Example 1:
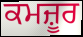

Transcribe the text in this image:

ਕਮਜ਼ੂਰ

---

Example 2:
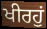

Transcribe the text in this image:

ਖੀਰਹੁਂ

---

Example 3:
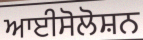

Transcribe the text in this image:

ਆਈਸੋਲੋਸ਼ਨ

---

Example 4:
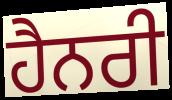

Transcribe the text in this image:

ਹੈਨਰੀ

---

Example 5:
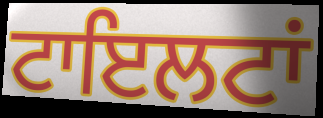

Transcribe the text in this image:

ਟਾਇਲਟਾਂ